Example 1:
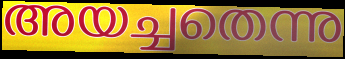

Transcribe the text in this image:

അയച്ചതെന്നു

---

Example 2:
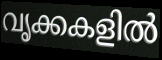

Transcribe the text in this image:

വൃക്കകളിൽ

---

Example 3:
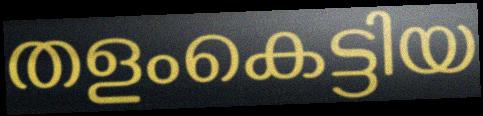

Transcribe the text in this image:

തളംകെട്ടിയ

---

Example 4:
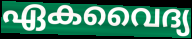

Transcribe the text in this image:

ഏകവൈദ്യ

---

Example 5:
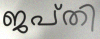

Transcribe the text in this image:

ജപ്‌തി